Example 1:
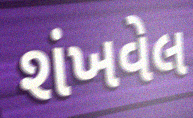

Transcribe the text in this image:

શંખવેલ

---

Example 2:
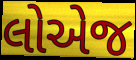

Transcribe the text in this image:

લોએજ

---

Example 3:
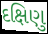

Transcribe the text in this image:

દક્ષિણુ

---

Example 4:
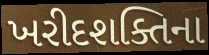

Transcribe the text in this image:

ખરીદશક્તિના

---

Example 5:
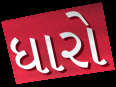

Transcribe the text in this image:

ધારો